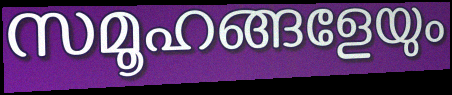
സമൂഹങ്ങളേയും